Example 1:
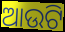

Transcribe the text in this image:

ଆଉଟି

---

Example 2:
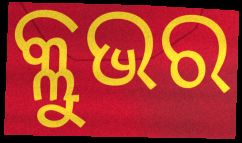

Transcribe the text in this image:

କ୍ଲୁଭର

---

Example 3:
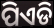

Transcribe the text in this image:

ପିଏଡି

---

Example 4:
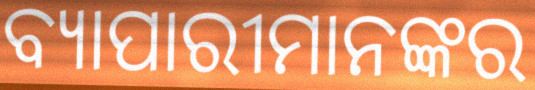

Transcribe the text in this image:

ବ୍ୟାପାରୀମାନଙ୍କର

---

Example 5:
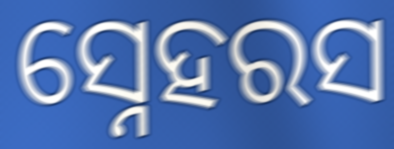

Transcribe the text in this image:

ସ୍ନେହରସ